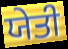
ਯੇਤੀ